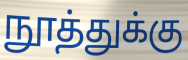
நூத்துக்கு